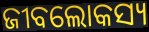
ଜୀବଲୋକସ୍ୟ